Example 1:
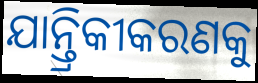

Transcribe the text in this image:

ଯାନ୍ତ୍ରିକୀକରଣକୁ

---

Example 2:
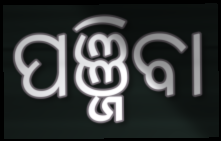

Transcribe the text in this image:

ପଞ୍ଜିବା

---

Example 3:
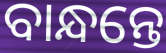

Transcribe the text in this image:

ବାନ୍ଧନ୍ତେ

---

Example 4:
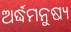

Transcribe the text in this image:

ଅର୍ଦ୍ଧମନୁଷ୍ୟ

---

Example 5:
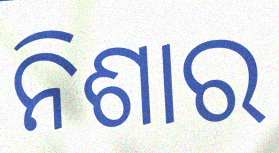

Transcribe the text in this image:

ନିଶାର